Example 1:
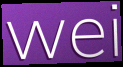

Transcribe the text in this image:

wei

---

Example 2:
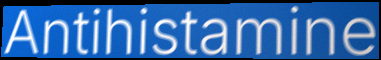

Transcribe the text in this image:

Antihistamine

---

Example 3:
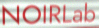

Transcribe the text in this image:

NOIRLab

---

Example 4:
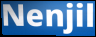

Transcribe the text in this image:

Nenjil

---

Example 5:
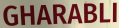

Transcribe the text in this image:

GHARABLI